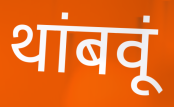
थांबवूं